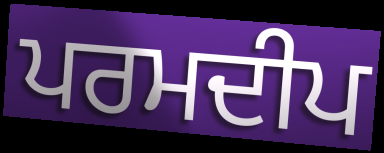
ਪਰਮਦੀਪ